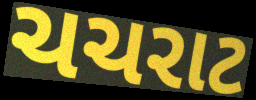
ચચરાટ